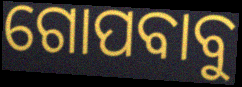
ଗୋପବାବୁ